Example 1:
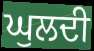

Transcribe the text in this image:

ਘੁਲਦੀ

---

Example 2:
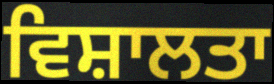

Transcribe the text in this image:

ਵਿਸ਼ਾਲਤਾ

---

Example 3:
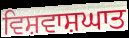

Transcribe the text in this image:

ਵਿਸ਼ਵਾਸ਼ਘਾਤ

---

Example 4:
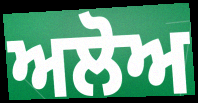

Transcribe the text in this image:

ਅਲੋਅ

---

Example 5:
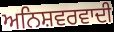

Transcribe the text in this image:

ਅਨਿਸ਼ਵਰਵਾਦੀ